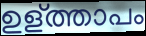
ഉള്ത്താപം